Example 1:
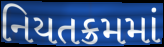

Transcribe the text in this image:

નિયતક્રમમાં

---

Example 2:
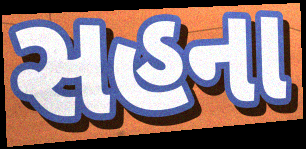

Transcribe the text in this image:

સહના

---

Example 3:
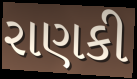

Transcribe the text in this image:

રાણકી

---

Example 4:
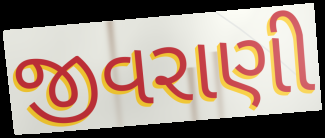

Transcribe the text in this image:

જીવરાણી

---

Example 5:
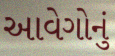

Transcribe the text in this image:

આવેગોનું